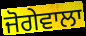
ਜੋਗੇਵਾਲਾ